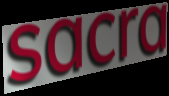
sacra